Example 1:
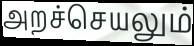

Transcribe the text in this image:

அறச்செயலும்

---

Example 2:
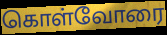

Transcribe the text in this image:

கொள்வோரை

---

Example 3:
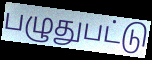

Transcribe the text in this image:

பழுதுபட்டு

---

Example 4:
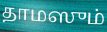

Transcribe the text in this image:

தாமஸும்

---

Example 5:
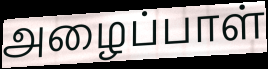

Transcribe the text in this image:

அழைப்பாள்